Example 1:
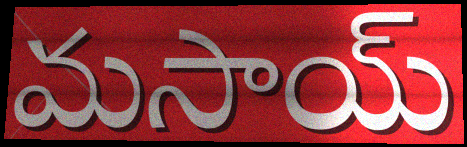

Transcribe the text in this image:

మసాయ్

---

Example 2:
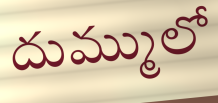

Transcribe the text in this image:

దుమ్ములో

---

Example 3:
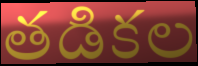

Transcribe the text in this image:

తడికల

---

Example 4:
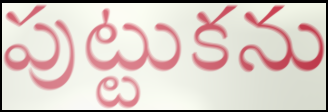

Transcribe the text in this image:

పుట్టుకను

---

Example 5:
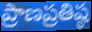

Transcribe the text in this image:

ప్రాణప్రతిష్ఠ